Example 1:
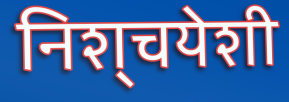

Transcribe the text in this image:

निश्चयेशी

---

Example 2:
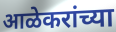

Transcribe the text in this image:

आळेकरांच्या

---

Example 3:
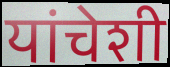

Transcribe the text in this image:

यांचेशी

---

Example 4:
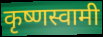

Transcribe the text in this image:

कृष्णस्वामी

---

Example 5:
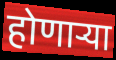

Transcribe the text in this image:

होणार्‍या